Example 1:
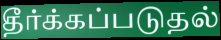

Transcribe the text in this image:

தீர்க்கப்படுதல்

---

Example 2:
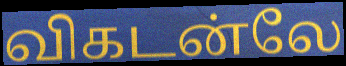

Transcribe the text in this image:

விகடன்லே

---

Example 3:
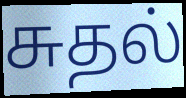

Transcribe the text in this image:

சுதல்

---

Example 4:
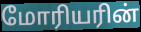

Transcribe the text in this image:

மோரியரின்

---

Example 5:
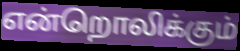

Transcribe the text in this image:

என்றொலிக்கும்